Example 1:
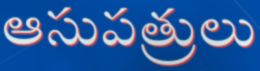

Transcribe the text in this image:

ఆసుపత్రులు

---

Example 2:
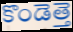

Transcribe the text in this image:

కొండెత్తె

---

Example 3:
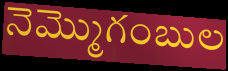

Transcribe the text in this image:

నెమ్మొగంబుల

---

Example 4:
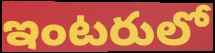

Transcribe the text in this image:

ఇంటరులో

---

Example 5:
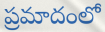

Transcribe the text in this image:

ప్రమాదంలో